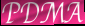
PDMA